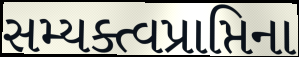
સમ્યક્ત્વપ્રાપ્તિના